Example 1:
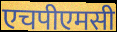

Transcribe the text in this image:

एचपीएमसी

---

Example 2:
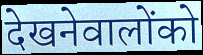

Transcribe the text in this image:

देखनेवालोंको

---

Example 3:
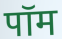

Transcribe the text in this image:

पॉम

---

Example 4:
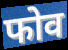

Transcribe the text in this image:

फोव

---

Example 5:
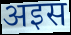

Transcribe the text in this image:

अइस